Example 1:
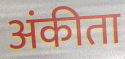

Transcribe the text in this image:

अंकीता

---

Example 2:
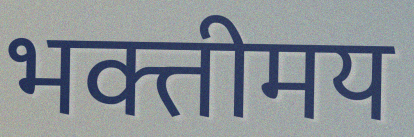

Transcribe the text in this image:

भक्तीमय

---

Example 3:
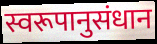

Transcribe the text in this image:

स्वरूपानुसंधान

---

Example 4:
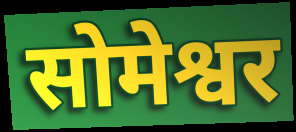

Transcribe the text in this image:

सोमेश्वर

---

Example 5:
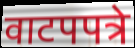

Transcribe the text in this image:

वाटपपत्रे